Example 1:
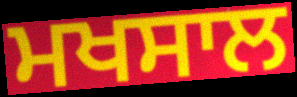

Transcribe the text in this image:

ਮਖਸਾਲ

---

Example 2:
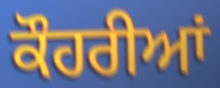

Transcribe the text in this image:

ਕੌਹਰੀਆਂ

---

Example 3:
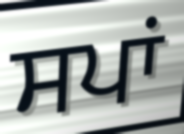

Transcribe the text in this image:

ਸਪਾਂ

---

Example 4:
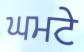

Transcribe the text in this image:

ਘਮਟੇ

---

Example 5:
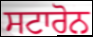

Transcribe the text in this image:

ਸਟਾਰੋਨ